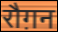
रौग़न